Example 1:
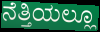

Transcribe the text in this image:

ನೆತ್ತಿಯಲ್ಲೂ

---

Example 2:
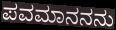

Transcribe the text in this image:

ಪವಮಾನನನು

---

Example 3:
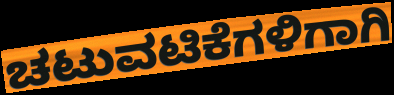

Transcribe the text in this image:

ಚಟುವಟಿಕೆಗಳಿಗಾಗಿ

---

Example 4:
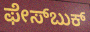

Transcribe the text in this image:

ಫೇಸ್‍ಬುಕ್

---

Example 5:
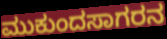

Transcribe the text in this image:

ಮುಕುಂದಸಾಗರನ